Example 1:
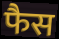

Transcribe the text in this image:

फैस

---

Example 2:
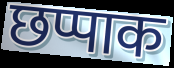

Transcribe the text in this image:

छप्पाक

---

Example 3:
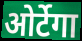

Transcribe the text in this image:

ओर्टेगा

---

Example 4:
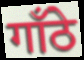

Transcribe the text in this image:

गाँठे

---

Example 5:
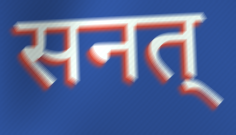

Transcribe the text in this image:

सनत्